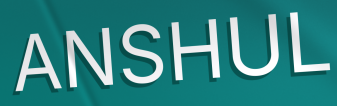
ANSHUL